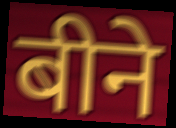
बीने